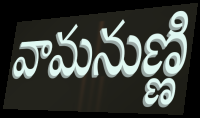
వామనుణ్ణి